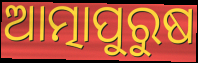
ଆତ୍ମାପୁରୁଷ